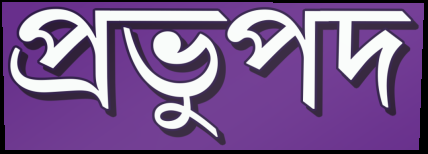
প্রভুপদ